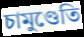
চামুণ্ডেতি